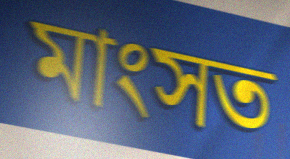
মাংসত